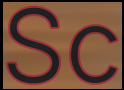
Sc